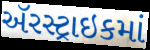
ઍરસ્ટ્રાઇકમાં